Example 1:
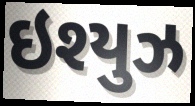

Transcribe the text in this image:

ઇશ્યુઝ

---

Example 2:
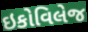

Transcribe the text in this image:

ઇકોવિલેજ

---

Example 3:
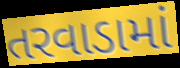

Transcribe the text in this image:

તરવાડામાં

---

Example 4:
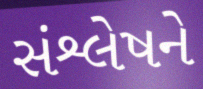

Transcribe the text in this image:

સંશ્લેષને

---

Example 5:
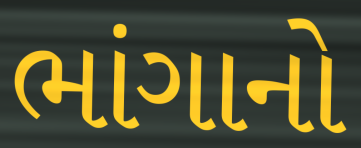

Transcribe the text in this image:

ભાંગાનો